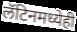
लॅटिनमध्येही